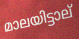
മാലയിട്ടാല്